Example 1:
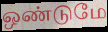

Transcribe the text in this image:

ஒண்டுமே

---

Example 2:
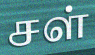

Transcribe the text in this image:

சள்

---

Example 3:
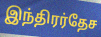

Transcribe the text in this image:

இந்திரர்தேச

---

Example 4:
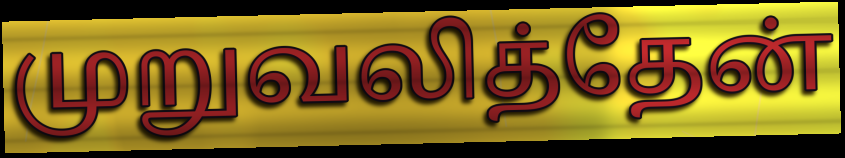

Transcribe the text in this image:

முறுவலித்தேன்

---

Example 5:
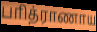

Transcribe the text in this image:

பரித்ராணாய